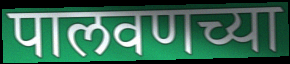
पालवणच्या